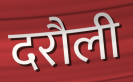
दरौली